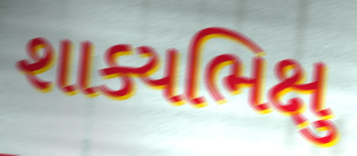
શાક્યભિક્ષુ